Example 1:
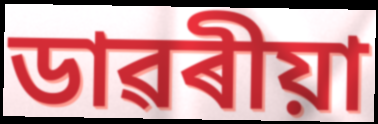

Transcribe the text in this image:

ডাৱৰীয়া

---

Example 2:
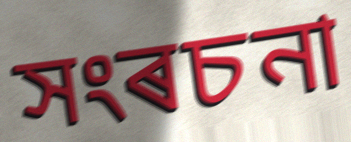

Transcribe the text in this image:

সংৰচনা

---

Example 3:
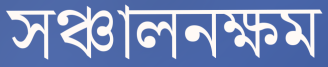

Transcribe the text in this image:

সঞ্চালনক্ষম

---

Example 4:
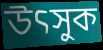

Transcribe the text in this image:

উৎসুক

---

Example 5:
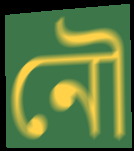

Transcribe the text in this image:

নৌ